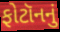
ફોટૉનનું